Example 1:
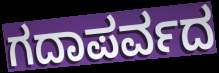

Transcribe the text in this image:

ಗದಾಪರ್ವದ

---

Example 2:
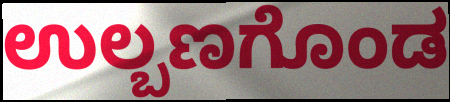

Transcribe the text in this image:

ಉಲ್ಬಣಗೊಂಡ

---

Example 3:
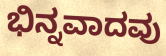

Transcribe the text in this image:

ಭಿನ್ನವಾದವು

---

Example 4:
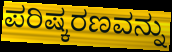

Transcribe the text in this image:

ಪರಿಷ್ಕರಣವನ್ನು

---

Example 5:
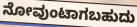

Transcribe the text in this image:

ನೋವುಂಟಾಗಬಹುದು